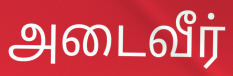
அடைவீர்